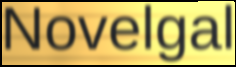
Novelgal